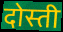
दोस्ती